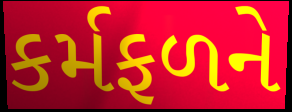
કર્મફળને